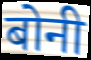
बोनी